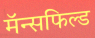
मॅन्सफिल्ड